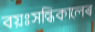
বয়ঃসন্ধিকালেৰ